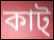
কাট্